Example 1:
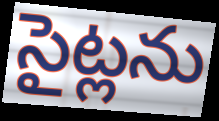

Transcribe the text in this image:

సైట్లను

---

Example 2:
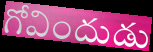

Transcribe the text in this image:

గోవిందుడు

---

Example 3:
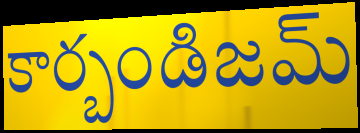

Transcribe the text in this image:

కార్బండిజమ్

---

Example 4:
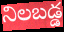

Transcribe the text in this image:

నిలబడ్డ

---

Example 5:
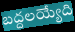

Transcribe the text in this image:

బద్దలయ్యేది